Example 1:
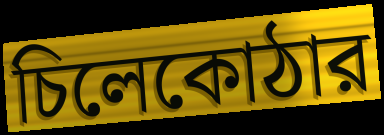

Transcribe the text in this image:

চিলেকোঠার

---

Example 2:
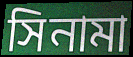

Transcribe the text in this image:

সিনামা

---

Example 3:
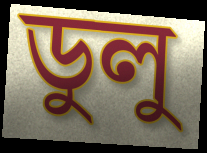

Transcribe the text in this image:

ডুলু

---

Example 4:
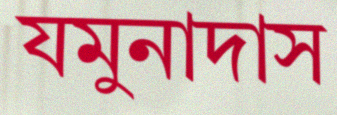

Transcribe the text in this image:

যমুনাদাস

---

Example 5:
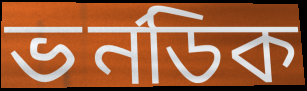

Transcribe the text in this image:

ভর্নডিক